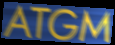
ATGM